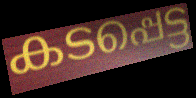
കടപ്പെട്ട